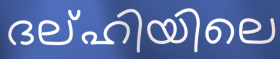
ദല്ഹിയിലെ